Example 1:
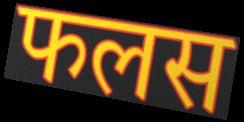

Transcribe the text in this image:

फलस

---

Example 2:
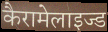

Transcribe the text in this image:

कैरामेलाइज्ड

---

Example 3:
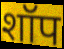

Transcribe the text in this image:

शॉप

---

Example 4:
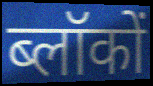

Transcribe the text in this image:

ब्लॉकों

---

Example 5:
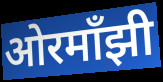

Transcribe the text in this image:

ओरमाँझी